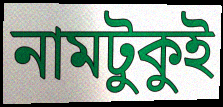
নামটুকুই